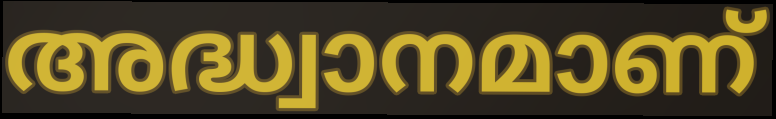
അദ്ധ്വാനമാണ്